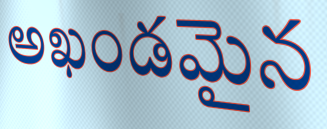
అఖండమైన